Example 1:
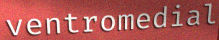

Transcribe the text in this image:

ventromedial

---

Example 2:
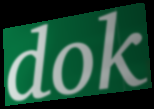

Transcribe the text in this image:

dok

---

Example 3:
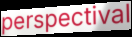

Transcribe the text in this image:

perspectival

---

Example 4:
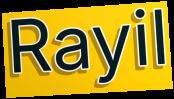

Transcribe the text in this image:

Rayil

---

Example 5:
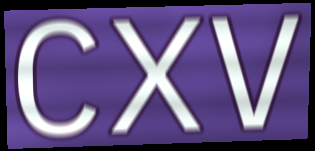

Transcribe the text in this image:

CXV